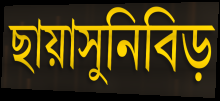
ছায়াসুনিবিড়